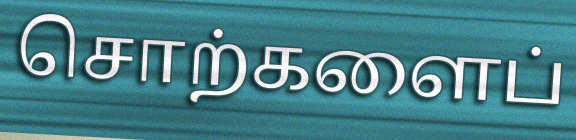
சொற்களைப்